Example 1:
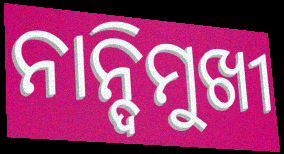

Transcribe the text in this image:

ନାନ୍ଦିମୁଖୀ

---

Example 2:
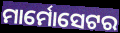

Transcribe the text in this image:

ମାର୍ମୋସେଟର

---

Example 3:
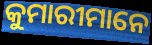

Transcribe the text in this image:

କୁମାରୀମାନେ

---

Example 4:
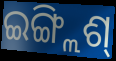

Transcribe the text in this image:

ଇଙ୍ଗ୍ଲିଶ୍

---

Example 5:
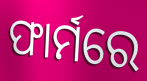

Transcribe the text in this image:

ଫାର୍ମରେ